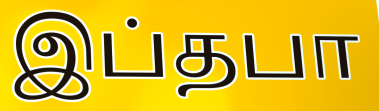
இப்தபா